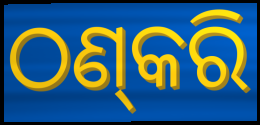
ଠଣ୍‌କରି